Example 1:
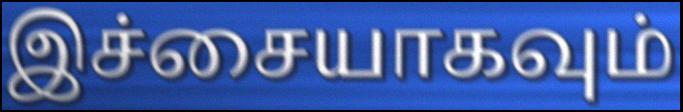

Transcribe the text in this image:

இச்சையாகவும்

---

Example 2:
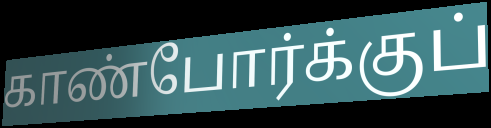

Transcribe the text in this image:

காண்போர்க்குப்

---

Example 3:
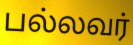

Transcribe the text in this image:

பல்லவர்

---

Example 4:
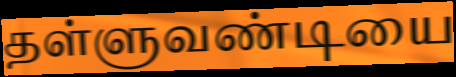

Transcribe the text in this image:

தள்ளுவண்டியை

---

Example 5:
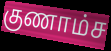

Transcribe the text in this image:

குணாம்ச